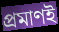
প্রমাণই